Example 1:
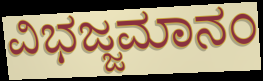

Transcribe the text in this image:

ವಿಭಜ್ಜಮಾನಂ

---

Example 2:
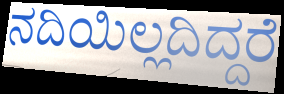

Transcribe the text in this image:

ನದಿಯಿಲ್ಲದಿದ್ದರೆ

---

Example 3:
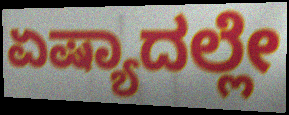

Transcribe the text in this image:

ಏಷ್ಯಾದಲ್ಲೇ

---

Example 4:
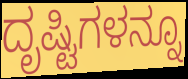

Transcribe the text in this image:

ದೃಷ್ಟಿಗಳನ್ನೂ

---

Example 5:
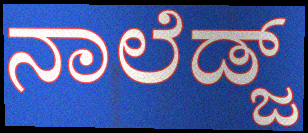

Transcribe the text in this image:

ನಾಲೆಡ್ಜ್